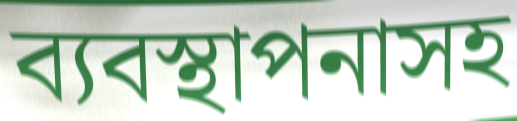
ব্যবস্থাপনাসহ